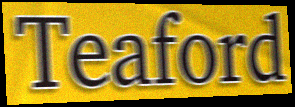
Teaford